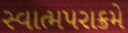
સ્વાત્મપરાક્રમે